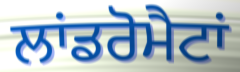
ਲਾਂਡਰੋਮੈਟਾਂ